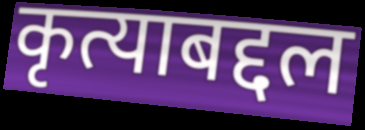
कृत्याबद्दल